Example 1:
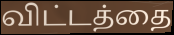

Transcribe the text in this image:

விட்டத்தை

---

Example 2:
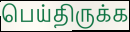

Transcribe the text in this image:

பெய்திருக்க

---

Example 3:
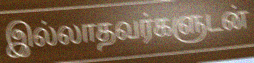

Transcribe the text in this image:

இல்லாதவர்களுடன்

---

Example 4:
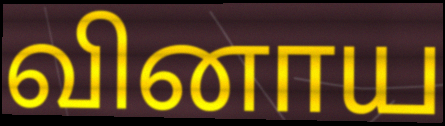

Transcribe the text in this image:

வினாய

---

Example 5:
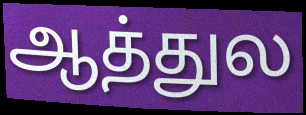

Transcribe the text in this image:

ஆத்துல